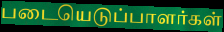
படையெடுப்பாளர்கள்